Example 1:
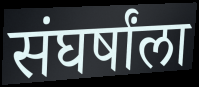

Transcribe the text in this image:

संघर्षांला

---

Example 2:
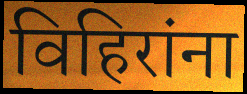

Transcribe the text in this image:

विहिरांना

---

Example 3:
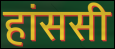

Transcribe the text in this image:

हांससी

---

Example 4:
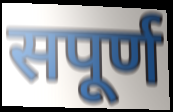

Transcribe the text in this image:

सपूर्ण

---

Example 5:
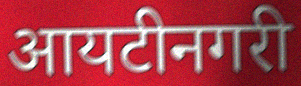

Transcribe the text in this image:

आयटीनगरी